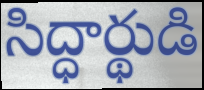
సిద్ధార్థుడి